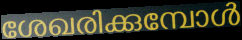
ശേഖരിക്കുമ്പോൾ